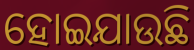
ହୋଇଯାଉଛି